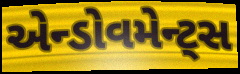
એન્ડોવમેન્ટ્સ